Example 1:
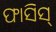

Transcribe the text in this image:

ଫାସିସ୍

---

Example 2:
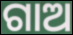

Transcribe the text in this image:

ଗାଅ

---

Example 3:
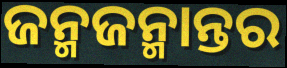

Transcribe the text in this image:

ଜନ୍ମଜନ୍ମାନ୍ତର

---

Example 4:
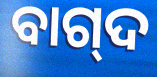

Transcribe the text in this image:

ବାଗ୍‌ଦ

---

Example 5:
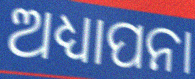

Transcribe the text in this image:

ଅଧ୍ଯାପନା